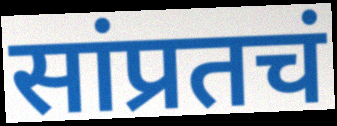
सांप्रतचं